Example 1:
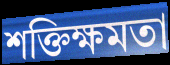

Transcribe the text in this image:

শক্তিক্ষমতা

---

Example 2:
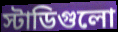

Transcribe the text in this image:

স্টাডিগুলো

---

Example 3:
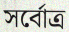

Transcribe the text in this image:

সর্বোত্র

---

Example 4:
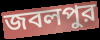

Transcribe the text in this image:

জবলপুর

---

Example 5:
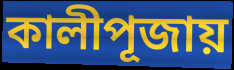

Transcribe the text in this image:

কালীপূজায়